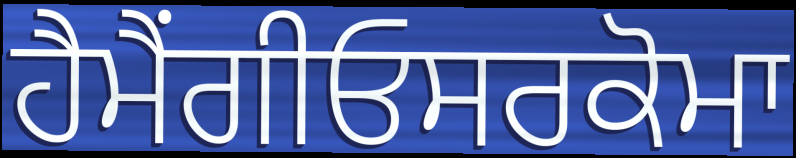
ਹੈਮੈਂਗੀਓਸਰਕੋਮਾ